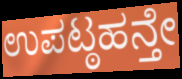
ಉಪಟ್ಠಹನ್ತೇ